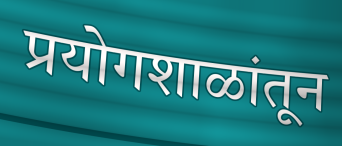
प्रयोगशाळांतून